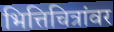
भित्तिचित्रांवर